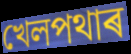
খেলপথাৰ